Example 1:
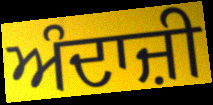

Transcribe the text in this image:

ਅੰਦਾਜ਼ੀ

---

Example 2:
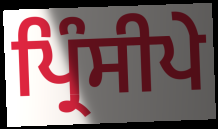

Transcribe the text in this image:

ਪ੍ਰਿੰਸੀਪੇ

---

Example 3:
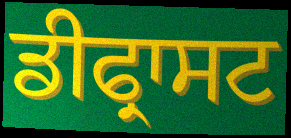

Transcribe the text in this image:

ਡੀਫ੍ਰਾਸਟ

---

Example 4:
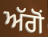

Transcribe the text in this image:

ਅੱਗੋਂ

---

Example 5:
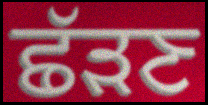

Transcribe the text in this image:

ਛੱੜਣ